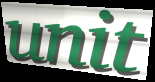
unit